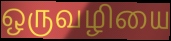
ஒருவழியை